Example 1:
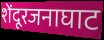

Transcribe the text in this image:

शेंदूरजनाघाट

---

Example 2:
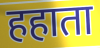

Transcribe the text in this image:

हहाता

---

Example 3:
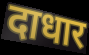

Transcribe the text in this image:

दाधार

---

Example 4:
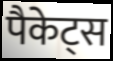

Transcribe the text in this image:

पैकेट्स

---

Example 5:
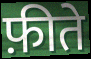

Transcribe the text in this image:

फ़ीते